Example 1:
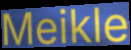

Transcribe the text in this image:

Meikle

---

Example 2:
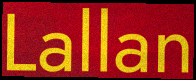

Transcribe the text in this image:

Lallan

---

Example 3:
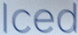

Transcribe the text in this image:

Iced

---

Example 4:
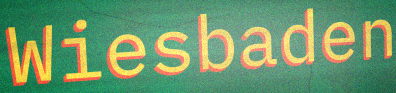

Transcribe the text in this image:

Wiesbaden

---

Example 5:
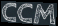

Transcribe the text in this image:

CCM